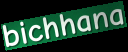
bichhana